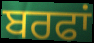
ਬਰਫਾਂ